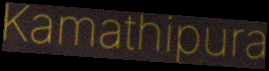
Kamathipura